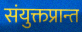
संयुक्तप्रान्त